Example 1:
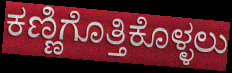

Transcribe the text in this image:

ಕಣ್ಣಿಗೊತ್ತಿಕೊಳ್ಳಲು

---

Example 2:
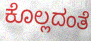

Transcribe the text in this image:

ಕೊಲ್ಲದಂತೆ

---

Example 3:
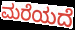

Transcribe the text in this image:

ಮರೆಯದೆ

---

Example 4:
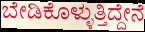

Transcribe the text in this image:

ಬೇಡಿಕೊಳ್ಳುತ್ತಿದ್ದೇನೆ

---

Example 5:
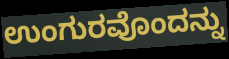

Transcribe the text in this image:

ಉಂಗುರವೊಂದನ್ನು